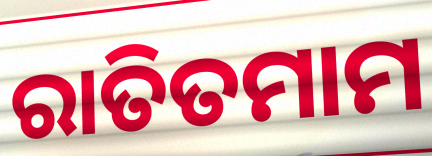
ରାତିତମାମ